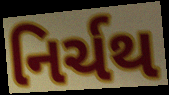
નિર્ચથ